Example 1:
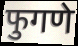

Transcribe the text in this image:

फुगणे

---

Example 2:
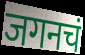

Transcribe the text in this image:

जगनचं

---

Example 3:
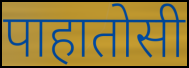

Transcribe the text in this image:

पाहातोसी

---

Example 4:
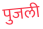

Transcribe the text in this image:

पुजली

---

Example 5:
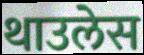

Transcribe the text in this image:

थाउलेस